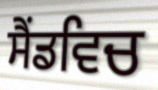
ਸੈਂਡਵਿਚ